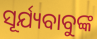
ସୂର୍ଯ୍ୟବାବୁଙ୍କ